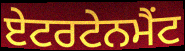
ਏਟਰਟੇਨਮੈਂਟ